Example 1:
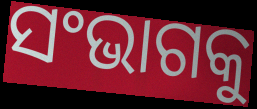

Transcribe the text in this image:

ସଂଭାଗକୁ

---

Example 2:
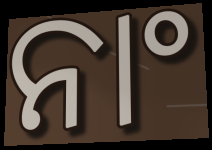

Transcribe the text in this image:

ନାଂ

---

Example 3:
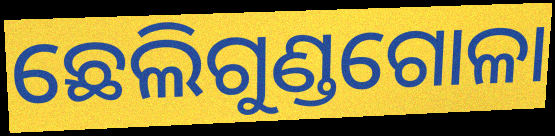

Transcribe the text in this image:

ଛେଲିଗୁଣ୍ଡଗୋଳା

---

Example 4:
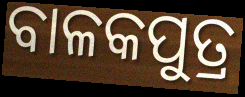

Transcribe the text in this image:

ବାଳକପୁତ୍ର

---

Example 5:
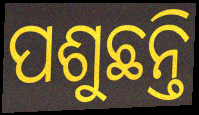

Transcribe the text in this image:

ପଶୁଛନ୍ତି